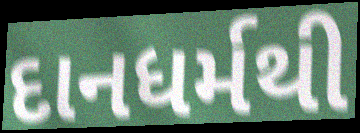
દાનધર્મથી